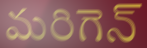
మరిగెన్